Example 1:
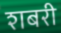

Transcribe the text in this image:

शबरी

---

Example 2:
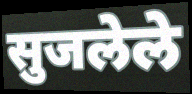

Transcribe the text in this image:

सुजलेले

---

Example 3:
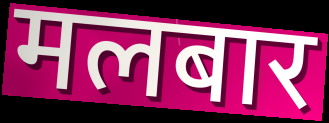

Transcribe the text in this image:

मलबार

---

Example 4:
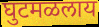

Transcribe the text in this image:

घुटमळलाय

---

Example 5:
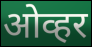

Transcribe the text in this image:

ओव्हर